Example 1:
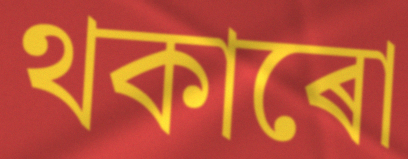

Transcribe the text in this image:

থকাৰো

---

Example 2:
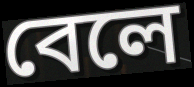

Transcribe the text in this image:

বেলে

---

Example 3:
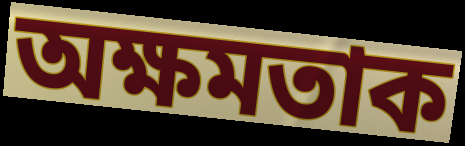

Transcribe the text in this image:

অক্ষমতাক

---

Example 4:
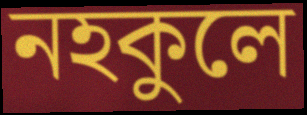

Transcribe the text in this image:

নহকুলে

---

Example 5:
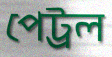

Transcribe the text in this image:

পেট্ৰল